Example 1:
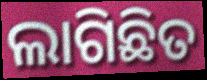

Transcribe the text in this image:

ଲାଗିଛିତ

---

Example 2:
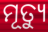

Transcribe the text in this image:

ମୂତ୍ୟୁ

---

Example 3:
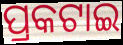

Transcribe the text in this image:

ପ୍ରକଟାଇ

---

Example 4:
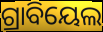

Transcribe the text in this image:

ଗ୍ରାବିୟେଲ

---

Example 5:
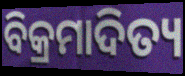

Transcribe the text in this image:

ବିକ୍ରମାଦିତ୍ୟ